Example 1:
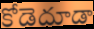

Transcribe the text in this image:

కోడెదూడా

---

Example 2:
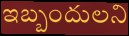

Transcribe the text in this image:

ఇబ్బందులని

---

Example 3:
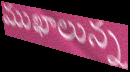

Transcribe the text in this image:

ముఖాలున్న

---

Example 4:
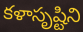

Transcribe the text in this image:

కళాసృష్టిని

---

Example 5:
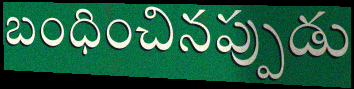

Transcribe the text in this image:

బంధించినప్పుడు